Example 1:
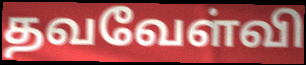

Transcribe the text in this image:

தவவேள்வி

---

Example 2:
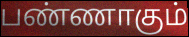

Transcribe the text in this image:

பண்ணாகும்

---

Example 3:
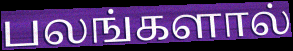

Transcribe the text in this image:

பலங்களால்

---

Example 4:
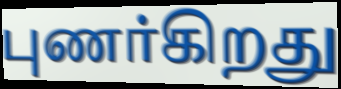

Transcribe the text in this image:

புணர்கிறது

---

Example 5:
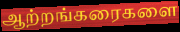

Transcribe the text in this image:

ஆற்றங்கரைகளை